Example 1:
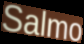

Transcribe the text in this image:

Salmo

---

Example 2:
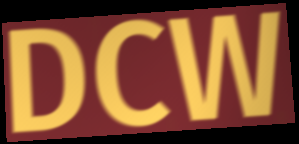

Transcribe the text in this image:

DCW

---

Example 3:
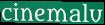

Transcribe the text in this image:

cinemalu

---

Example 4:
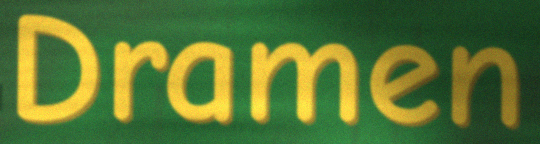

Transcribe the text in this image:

Dramen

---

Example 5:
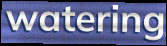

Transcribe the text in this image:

watering